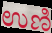
ಉಣಿ